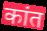
कांत